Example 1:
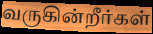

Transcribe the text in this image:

வருகின்றீர்கள்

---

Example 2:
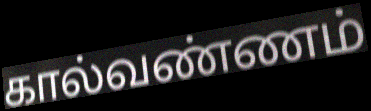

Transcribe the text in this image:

கால்வண்ணம்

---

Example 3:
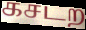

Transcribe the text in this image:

கசடற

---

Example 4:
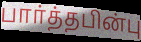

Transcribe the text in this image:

பார்த்தபின்பு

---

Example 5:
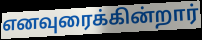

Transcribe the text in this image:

எனவுரைக்கின்றார்